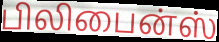
பிலிபைன்ஸ்